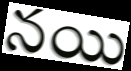
నయి